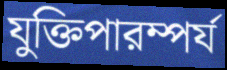
যুক্তিপারম্পর্য